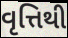
વૃત્તિથી